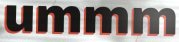
ummm